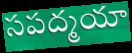
సపద్మయా